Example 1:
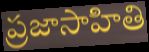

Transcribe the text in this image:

ప్రజాసాహితి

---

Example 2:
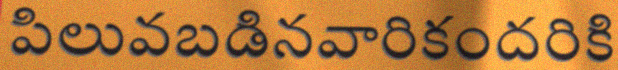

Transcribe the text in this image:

పిలువబడినవారికందరికి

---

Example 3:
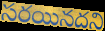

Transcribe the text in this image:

సరయినదని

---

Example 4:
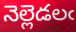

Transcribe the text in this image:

నెల్లెడలఁ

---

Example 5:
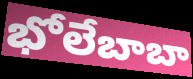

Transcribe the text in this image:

భోలేబాబా